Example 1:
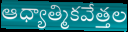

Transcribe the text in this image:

ఆధ్యాత్మికవేత్తల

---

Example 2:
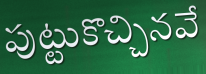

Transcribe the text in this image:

పుట్టుకొచ్చినవే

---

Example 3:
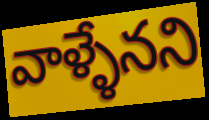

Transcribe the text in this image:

వాళ్ళేనని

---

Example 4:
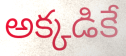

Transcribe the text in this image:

అక్కడికే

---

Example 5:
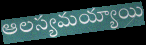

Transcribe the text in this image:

ఆలస్యమయ్యాయి